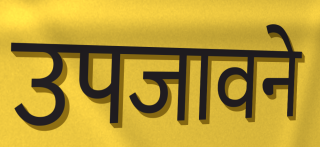
उपजावने